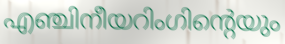
എഞ്ചിനീയറിംഗിന്റെയും